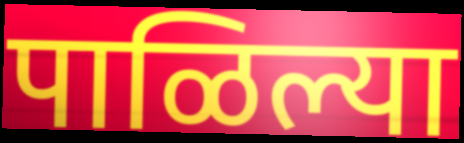
पाळिल्या